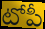
టోపీ